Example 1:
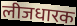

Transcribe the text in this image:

लीजधारक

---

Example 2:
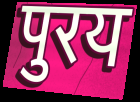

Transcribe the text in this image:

पुरय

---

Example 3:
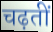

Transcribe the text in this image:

चढ़तीं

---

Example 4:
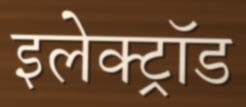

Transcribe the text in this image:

इलेक्ट्रॉड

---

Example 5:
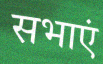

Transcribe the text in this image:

सभाएं